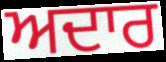
ਅਦਾਰ